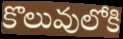
కొలువులోకి